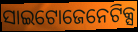
ସାଇଟୋଜେନେଟିକ୍ସ